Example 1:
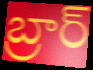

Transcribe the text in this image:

బ్రార్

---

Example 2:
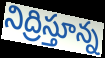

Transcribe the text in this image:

నిద్రిస్తూన్న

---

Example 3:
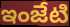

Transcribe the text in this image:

ఇంజేటి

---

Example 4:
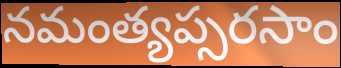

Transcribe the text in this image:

నమంత్యప్సరసాం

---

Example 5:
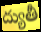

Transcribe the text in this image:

ద్యుతీ